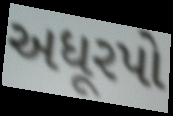
અધૂરપો